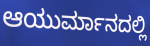
ಆಯುರ್ಮಾನದಲ್ಲಿ